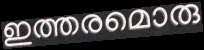
ഇത്തരമൊരു